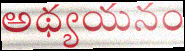
అథ్యయనం